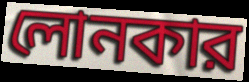
লোনকার